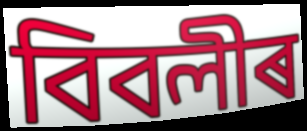
বিবলীৰ